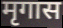
मृगास